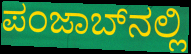
ಪಂಜಾಬ್‌ನಲ್ಲಿ